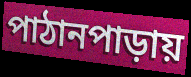
পাঠানপাড়ায়